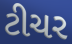
ટીચર